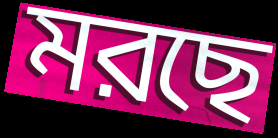
মরছে